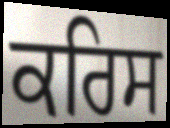
ਕਰਿਸ